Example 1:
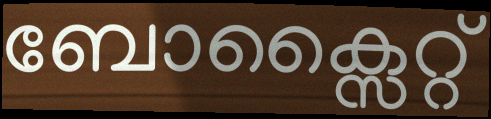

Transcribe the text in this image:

ബോക്സൈറ്റ്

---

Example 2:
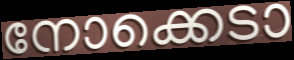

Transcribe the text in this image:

നോക്കെടാ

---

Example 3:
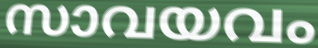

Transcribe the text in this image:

സാവയവം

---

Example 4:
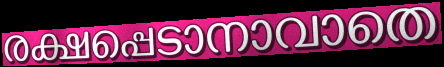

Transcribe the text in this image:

രക്ഷപ്പെടാനാവാതെ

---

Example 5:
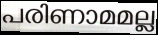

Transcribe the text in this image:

പരിണാമമല്ല